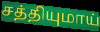
சத்தியுமாய்